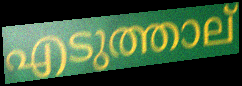
എടുത്താല്